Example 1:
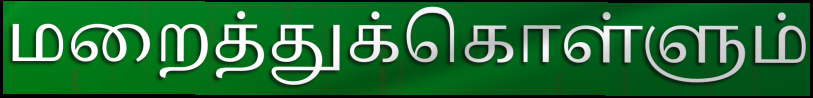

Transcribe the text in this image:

மறைத்துக்கொள்ளும்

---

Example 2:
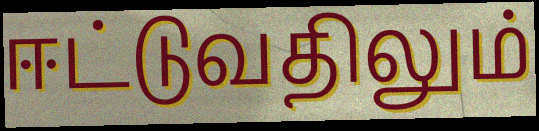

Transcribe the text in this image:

ஈட்டுவதிலும்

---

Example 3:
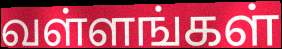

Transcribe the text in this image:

வள்ளங்கள்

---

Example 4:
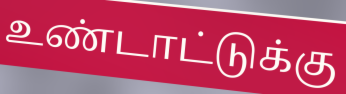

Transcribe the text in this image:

உண்டாட்டுக்கு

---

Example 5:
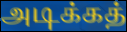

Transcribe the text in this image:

அடிக்கத்